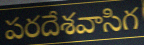
పరదేశవాసిగ